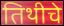
तिथीचे